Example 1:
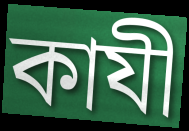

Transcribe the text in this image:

কাযী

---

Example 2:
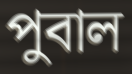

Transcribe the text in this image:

পুবাল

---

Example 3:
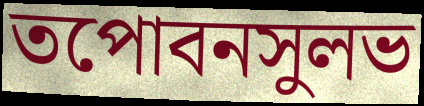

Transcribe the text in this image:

তপোবনসুলভ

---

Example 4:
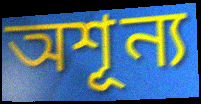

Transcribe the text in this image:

অশূন্য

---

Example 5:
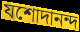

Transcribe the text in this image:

যশোদানন্দ